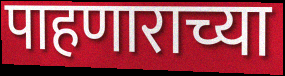
पाहणाराच्या